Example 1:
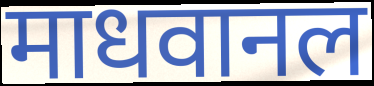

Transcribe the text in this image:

माधवानल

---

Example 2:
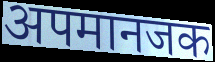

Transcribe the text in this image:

अपमानजक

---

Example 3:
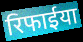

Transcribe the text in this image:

रिफाईया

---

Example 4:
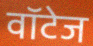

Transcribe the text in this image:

वॉटेज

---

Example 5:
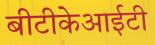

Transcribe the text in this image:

बीटीकेआईटी